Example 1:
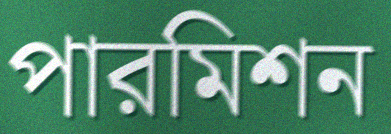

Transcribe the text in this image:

পারমিশন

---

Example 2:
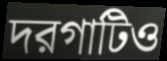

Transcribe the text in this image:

দরগাটিও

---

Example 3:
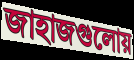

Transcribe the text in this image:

জাহাজগুলোয়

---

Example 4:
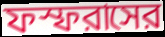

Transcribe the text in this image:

ফস্ফরাসের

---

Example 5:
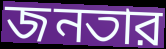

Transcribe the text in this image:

জনতার